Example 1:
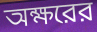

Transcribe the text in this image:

অক্ষরের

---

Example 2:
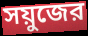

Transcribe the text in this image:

সয়ুজের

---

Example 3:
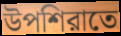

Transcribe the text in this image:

উপশিরাতে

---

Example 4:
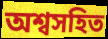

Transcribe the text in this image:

অশ্বসহিত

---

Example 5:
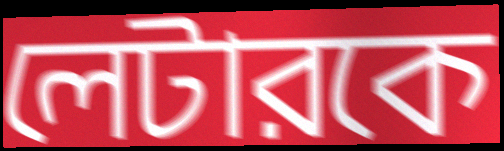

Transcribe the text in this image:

লেটারকে